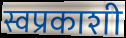
स्वप्रकाशी